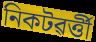
নিকটৱৰ্ত্তী